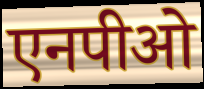
एनपीओ